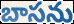
బాసను